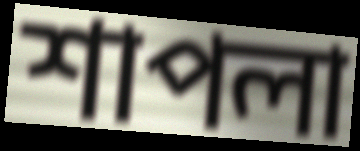
শাপলা